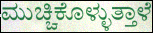
ಮುಚ್ಚಿಕೊಳ್ಳುತ್ತಾಳೆ